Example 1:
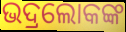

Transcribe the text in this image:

ଭଦ୍ରଲୋକଙ୍କ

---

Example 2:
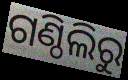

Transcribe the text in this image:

ଗଣ୍ଠିଲିରୁ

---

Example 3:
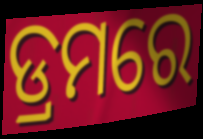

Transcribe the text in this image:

ଡ୍ରମରେ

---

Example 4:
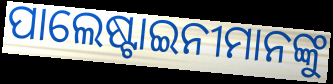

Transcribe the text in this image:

ପାଲେଷ୍ଟାଇନୀମାନଙ୍କୁ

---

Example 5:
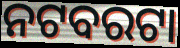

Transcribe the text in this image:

ନଟବରଟା